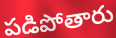
పడిపోతారు